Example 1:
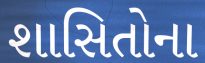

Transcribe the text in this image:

શાસિતોના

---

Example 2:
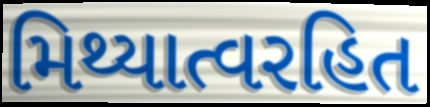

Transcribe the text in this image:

મિથ્યાત્વરહિત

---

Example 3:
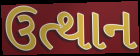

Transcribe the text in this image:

ઉત્થાન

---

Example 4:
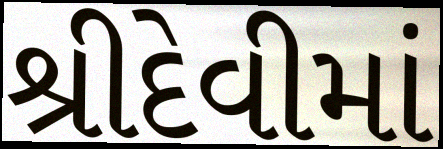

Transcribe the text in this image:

શ્રીદેવીમાં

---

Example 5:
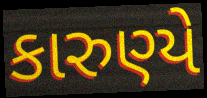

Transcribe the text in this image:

કારુણ્યે